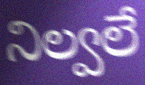
నిల్వలే